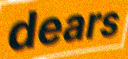
dears